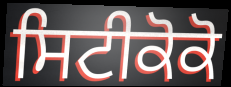
ਸਿਟੀਕੋਕੋ